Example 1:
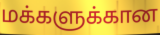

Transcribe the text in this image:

மக்களுக்கான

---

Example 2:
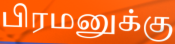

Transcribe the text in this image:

பிரமனுக்கு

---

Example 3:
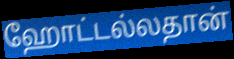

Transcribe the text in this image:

ஹோட்டல்லதான்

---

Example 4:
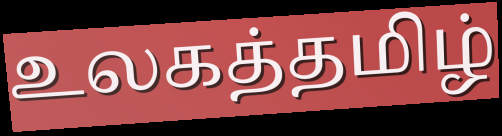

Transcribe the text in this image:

உலகத்தமிழ்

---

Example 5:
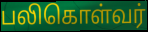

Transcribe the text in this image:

பலிகொள்வர்